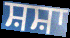
ਸ਼ਸ਼ਾ